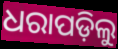
ଧରାପଡ଼ିଲୁ